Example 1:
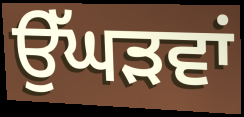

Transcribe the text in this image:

ਉੱਘੜਵਾਂ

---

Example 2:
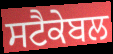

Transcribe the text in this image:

ਸਟੈਕੇਬਲ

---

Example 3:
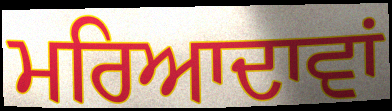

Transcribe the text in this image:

ਮਰਿਆਦਾਵਾਂ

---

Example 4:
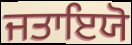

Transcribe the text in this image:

ਜਤਾਇਯੋ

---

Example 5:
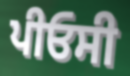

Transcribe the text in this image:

ਪੀਓਸੀ